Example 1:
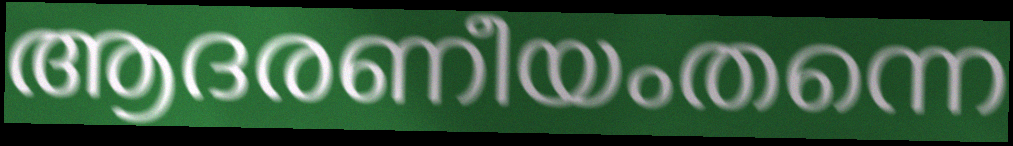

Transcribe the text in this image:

ആദരണീയംതന്നെ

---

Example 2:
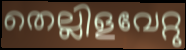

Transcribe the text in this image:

തെല്ലിളവേറ്റു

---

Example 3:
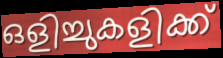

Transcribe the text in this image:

ഒളിച്ചുകളിക്ക്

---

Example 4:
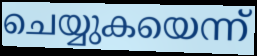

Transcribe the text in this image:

ചെയ്യുകയെന്ന്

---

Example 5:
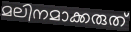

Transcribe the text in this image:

മലിനമാക്കരുത്